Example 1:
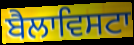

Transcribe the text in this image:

ਬੈਲਾਵਿਸਟਾ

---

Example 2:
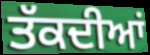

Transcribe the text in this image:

ਤੱਕਦੀਆਂ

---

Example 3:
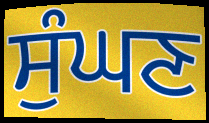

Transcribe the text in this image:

ਸੁੰਘਣ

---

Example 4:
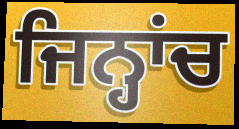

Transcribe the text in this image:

ਜਿਨ੍ਹਾਂਚ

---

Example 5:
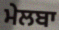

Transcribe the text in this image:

ਮੇਲਬਾ